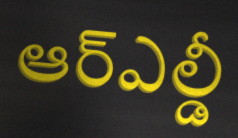
ఆర్ఎల్డీ